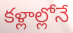
కళ్లాల్లోనే